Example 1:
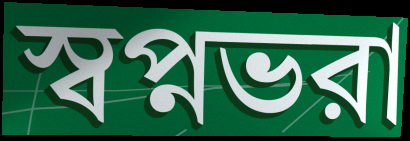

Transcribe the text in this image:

স্বপ্নভরা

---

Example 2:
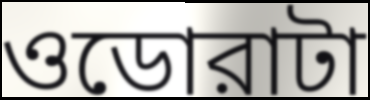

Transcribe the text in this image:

ওডোরাটা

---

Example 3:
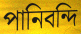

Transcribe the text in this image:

পানিবন্দি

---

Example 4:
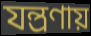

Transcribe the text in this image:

যন্ত্রণায়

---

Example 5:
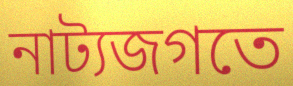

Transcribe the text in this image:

নাট্যজগতে